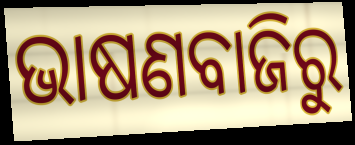
ଭାଷଣବାଜିରୁ